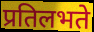
प्रतिलभते